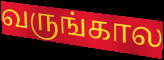
வருங்கால